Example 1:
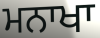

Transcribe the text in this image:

ਮਨਾਖਾ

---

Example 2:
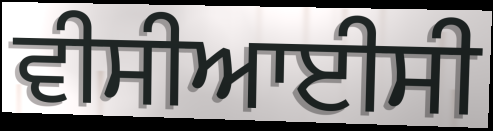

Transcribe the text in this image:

ਵੀਸੀਆਈਸੀ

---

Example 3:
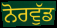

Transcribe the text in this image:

ਨੋਰਵੁੱਡ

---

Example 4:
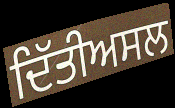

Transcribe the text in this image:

ਦਿੱਤੀਅਸਲ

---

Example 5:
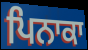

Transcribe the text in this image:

ਪਿਨਾਕਾ